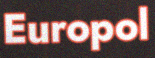
Europol